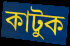
কাটুক